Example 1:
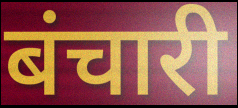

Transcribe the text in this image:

बंचारी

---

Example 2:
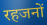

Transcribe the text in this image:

रहजनों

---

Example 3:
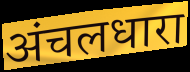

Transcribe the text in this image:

अंचलधारा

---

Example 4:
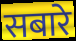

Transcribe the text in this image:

सबारे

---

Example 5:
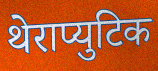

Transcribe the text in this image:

थेराप्युटिक